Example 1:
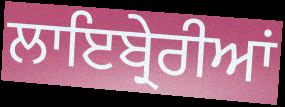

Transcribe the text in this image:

ਲਾਇਬ੍ਰੇਰੀਆਂ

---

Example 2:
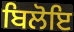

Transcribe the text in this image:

ਬਿਲੋਇ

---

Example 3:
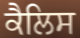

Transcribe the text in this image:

ਕੈਲਿਸ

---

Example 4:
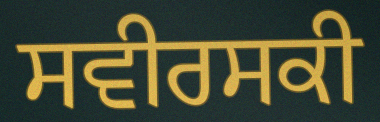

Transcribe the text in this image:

ਸਵੀਰਸਕੀ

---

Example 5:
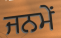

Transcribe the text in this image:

ਜਨਮੇਂ